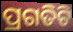
ପ୍ରଗତିଟି